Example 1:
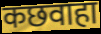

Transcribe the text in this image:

कछवाहा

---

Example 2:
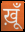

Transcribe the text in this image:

ख़ूँ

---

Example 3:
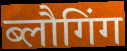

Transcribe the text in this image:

ब्लौगिंग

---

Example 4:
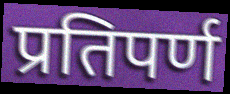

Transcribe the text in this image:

प्रतिपर्ण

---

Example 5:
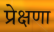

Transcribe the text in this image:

प्रेक्षणा